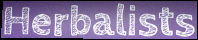
Herbalists